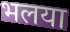
भलया